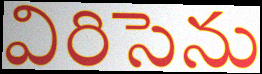
విరిసెను